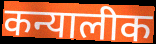
कन्यालीक